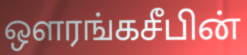
ஔரங்கசீபின்